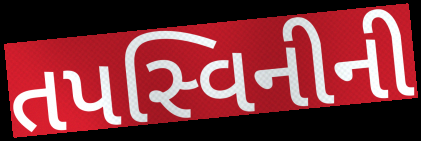
તપસ્વિનીની